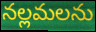
నల్లమలను